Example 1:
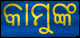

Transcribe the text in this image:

କାମୁଙ୍କ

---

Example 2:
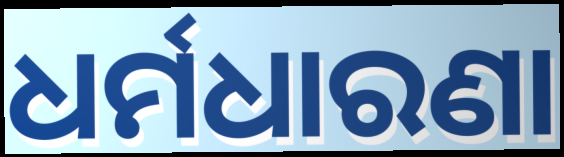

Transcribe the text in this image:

ଧର୍ମଧାରଣା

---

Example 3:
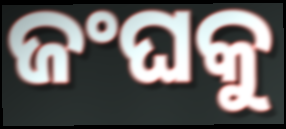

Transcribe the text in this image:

ଜଂଘକୁ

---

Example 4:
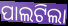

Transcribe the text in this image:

ପାଲଟିଲା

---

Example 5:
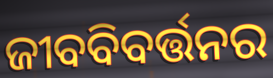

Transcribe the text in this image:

ଜୀବବିବର୍ତ୍ତନର